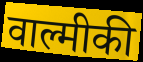
वाल्मीकी